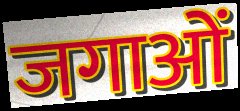
जगाओं